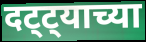
दट्ट्याच्या